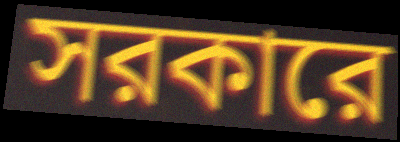
সরকারে